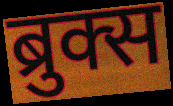
ब्रुक्‍स